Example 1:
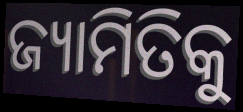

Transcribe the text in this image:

ଜ୍ୟାମିତିକୁ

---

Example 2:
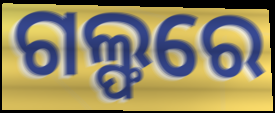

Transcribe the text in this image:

ଗଲ୍ଫରେ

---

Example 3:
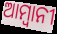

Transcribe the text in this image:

ଆମ୍ବାନୀ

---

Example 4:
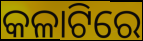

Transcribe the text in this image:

କଳାଟିରେ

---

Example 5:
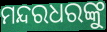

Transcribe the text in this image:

ମନ୍ଦରଧରଙ୍କୁ